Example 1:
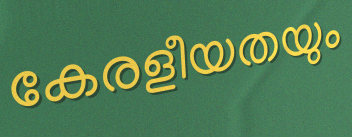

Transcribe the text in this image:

കേരളീയതയും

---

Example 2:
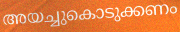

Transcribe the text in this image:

അയച്ചുകൊടുക്കണം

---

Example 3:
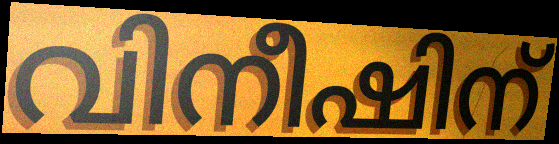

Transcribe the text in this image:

വിനീഷിന്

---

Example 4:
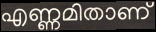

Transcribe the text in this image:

എണ്ണമിതാണ്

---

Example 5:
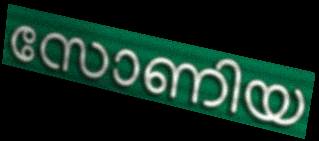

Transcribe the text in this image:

സോണിയ